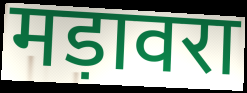
मड़ावरा